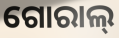
ଗୋରାଲ୍